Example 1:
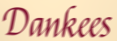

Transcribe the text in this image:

Dankees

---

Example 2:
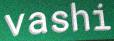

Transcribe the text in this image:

vashi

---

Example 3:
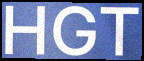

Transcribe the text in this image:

HGT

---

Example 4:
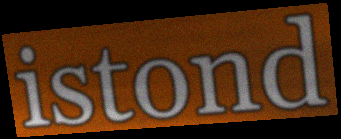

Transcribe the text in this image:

istond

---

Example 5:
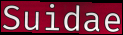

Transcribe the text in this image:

Suidae